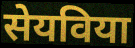
सेयविया